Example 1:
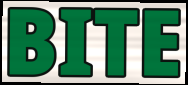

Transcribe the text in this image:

BITE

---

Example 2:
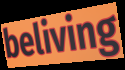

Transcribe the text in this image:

beliving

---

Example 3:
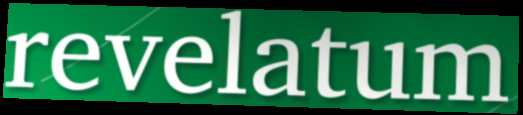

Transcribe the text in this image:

revelatum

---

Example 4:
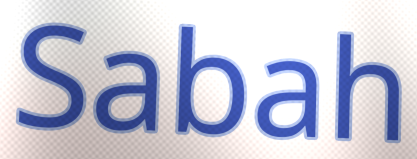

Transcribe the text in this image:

Sabah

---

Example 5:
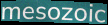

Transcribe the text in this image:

mesozoic